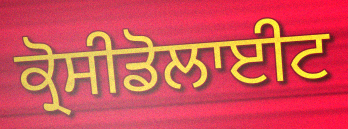
ਕ੍ਰੋਸੀਡੋਲਾਈਟ